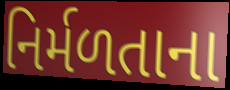
નિર્મળતાના